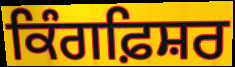
ਕਿੰਗਫ਼ਿਸ਼ਰ